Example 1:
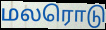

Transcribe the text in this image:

மலரொடு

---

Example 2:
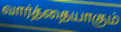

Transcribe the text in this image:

வார்த்தையாகும்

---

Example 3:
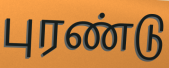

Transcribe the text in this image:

புரண்டு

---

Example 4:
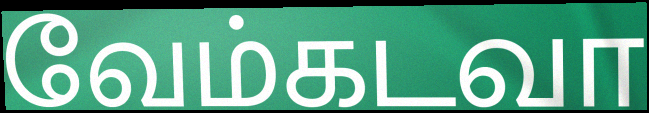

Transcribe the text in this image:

வேம்கடவா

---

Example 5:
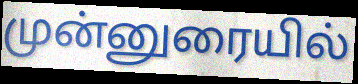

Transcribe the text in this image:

முன்னுரையில்